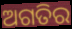
ଅଗତିର